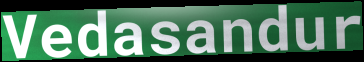
Vedasandur